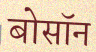
बोसॉन